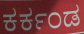
ಕರ್ಕಂಡ